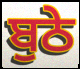
ਬੁਠੇ